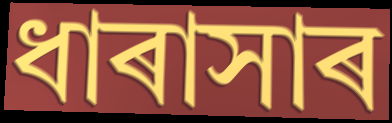
ধাৰাসাৰ